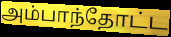
அம்பாந்தோட்ட